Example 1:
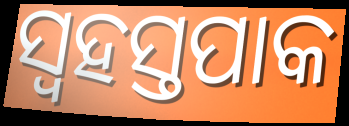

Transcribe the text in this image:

ସ୍ୱହସ୍ତପାକ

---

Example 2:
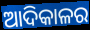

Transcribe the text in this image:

ଆଦିକାଳର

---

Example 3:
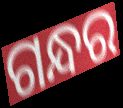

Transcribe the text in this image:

ଗନ୍ଧର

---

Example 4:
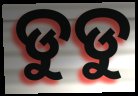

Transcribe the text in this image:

ଡୁଡୁ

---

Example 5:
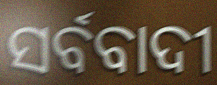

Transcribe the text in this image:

ସର୍ବବାଦୀ